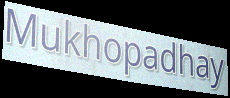
Mukhopadhay